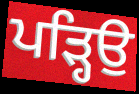
ਪੜ੍ਹਿਉ